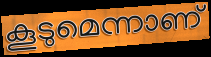
കൂടുമെന്നാണ്